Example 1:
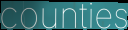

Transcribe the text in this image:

counties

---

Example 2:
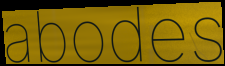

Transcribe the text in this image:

abodes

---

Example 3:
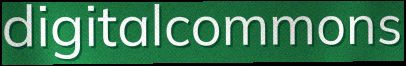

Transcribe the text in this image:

digitalcommons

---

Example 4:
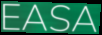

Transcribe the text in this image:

EASA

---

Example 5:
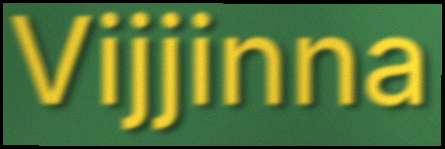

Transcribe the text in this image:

Vijjinna